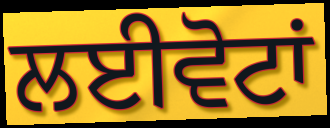
ਲਈਵੋਟਾਂ